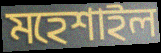
মহেশাইল